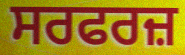
ਸਰਫਰਜ਼